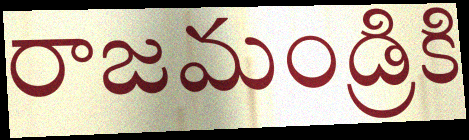
రాజమండ్రికి